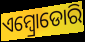
ଏମ୍ବ୍ରୋଡୋରି